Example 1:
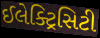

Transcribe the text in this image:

ઈલેક્ટ્રિસિટી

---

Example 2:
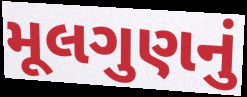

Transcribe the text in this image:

મૂલગુણનું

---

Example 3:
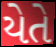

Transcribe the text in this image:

યેતે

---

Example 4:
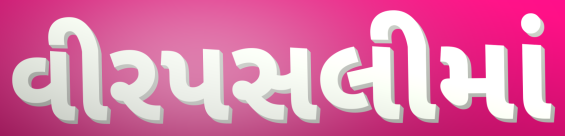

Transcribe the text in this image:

વીરપસલીમાં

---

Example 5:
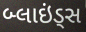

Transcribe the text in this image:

બ્લાઇંડ્સ